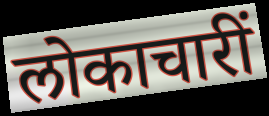
लोकाचारीं